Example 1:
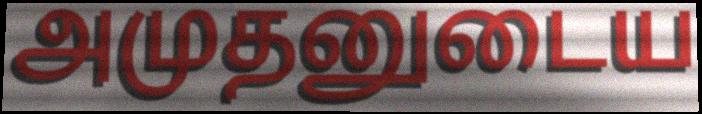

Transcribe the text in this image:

அமுதனுடைய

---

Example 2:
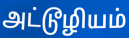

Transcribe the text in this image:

அட்டூழியம்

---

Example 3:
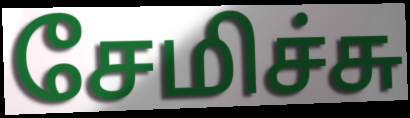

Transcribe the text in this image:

சேமிச்சு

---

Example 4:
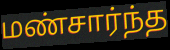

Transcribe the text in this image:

மண்சார்ந்த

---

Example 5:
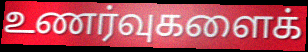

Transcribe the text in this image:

உணர்வுகளைக்